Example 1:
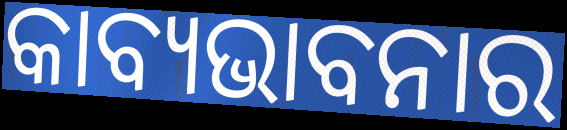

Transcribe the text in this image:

କାବ୍ୟଭାବନାର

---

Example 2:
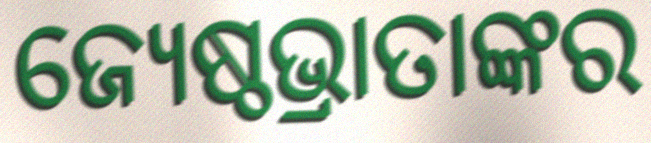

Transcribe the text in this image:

ଜ୍ୟେଷ୍ଠଭ୍ରାତାଙ୍କର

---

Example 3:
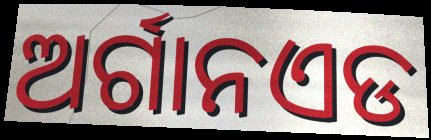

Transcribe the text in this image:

ଅର୍ଗାନଏଡ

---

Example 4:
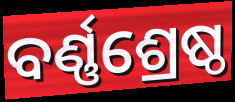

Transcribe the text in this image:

ବର୍ଣ୍ଣଶ୍ରେଷ୍ଠ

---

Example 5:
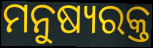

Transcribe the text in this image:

ମନୁଷ୍ଯରକ୍ତ